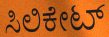
ಸಿಲಿಕೇಟ್